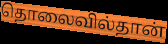
தொலைவில்தான்